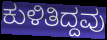
ಕುಳಿತಿದ್ದವು